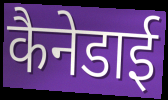
कैनेडाई